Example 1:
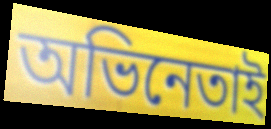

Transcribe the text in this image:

অভিনেতাই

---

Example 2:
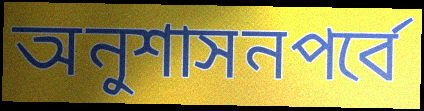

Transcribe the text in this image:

অনুশাসনপর্বে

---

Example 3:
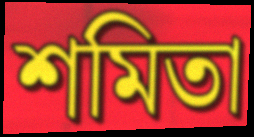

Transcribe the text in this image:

শমিতা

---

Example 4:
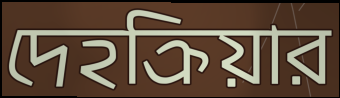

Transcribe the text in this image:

দেহক্রিয়ার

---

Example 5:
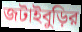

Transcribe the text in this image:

জটাইবুড়ির